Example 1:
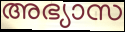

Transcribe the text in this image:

അഭ്യാസ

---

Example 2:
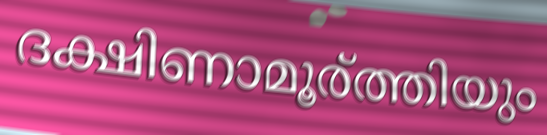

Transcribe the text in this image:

ദക്ഷിണാമൂര്ത്തിയും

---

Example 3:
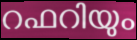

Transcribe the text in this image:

റഫറിയും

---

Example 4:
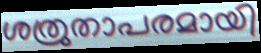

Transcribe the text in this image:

ശത്രുതാപരമായി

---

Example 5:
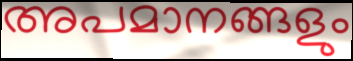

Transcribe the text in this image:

അപമാനങ്ങളും